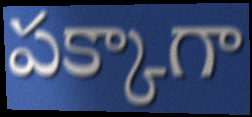
పక్కాగా